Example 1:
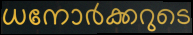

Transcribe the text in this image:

ധനോർക്കറുടെ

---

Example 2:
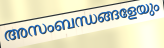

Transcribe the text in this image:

അസംബന്ധങ്ങളേയും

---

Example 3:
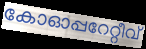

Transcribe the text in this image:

കോഓപ്പറേറ്റീവ്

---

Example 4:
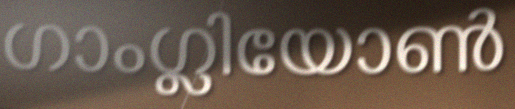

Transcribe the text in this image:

ഗാംഗ്ലിയോൺ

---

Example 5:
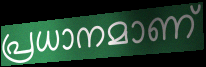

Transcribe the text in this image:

പ്രധാനമാണ്